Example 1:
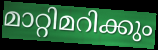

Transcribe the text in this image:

മാറ്റിമറിക്കും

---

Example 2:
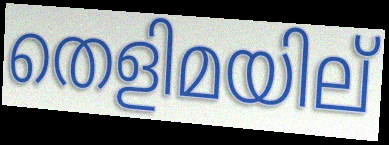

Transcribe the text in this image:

തെളിമയില്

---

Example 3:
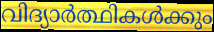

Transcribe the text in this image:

വിദ്യാർത്ഥികൾക്കും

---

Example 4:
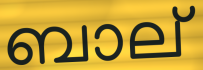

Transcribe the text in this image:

ബാല്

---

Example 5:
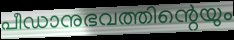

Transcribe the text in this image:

പീഡാനുഭവത്തിന്റെയും